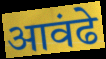
आवंढे